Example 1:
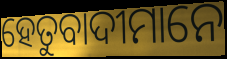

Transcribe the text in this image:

ହେତୁବାଦୀମାନେ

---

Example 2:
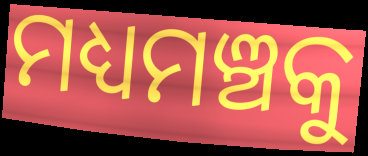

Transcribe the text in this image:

ମଧ୍ୟମଞ୍ଚକୁ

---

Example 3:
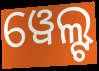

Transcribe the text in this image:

ୱେଲ୍ଟ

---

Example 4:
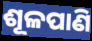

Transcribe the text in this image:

ଶୂଳପାଣି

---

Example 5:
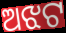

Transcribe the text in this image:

ଅଝଟ